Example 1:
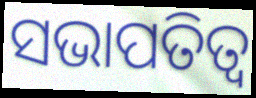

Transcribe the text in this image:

ସଭାପତିତ୍ବ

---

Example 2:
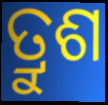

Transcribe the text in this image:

ତ୍ରୁଶ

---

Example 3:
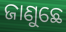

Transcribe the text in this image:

ଜାଣୁଛେ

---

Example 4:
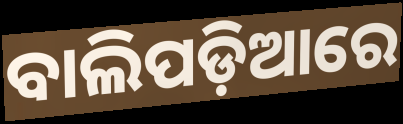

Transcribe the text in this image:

ବାଲିପଡ଼ିଆରେ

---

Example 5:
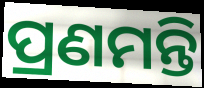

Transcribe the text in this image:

ପ୍ରଣମନ୍ତି